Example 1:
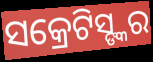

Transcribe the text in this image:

ସକ୍ରେଟିସ୍ଙ୍କର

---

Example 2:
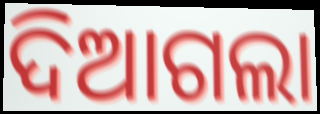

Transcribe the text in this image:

ଦିଆଗଲା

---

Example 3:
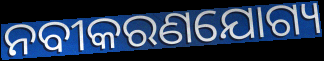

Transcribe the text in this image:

ନବୀକରଣଯୋଗ୍ୟ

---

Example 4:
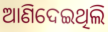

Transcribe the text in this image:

ଆଣିଦେଇଥିଲି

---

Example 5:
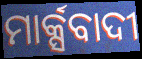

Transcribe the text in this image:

ମାର୍କ୍ସବାଦୀ